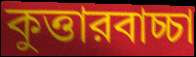
কুত্তারবাচ্চা